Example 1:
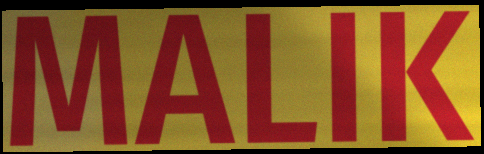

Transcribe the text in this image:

MALIK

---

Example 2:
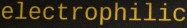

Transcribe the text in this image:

electrophilic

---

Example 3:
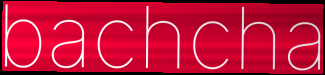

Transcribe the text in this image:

bachcha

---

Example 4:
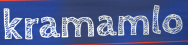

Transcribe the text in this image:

kramamlo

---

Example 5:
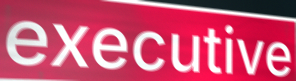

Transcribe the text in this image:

executive